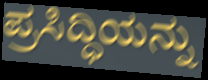
ಪ್ರಸಿದ್ಧಿಯನ್ನು